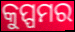
କୁପ୍ପମର